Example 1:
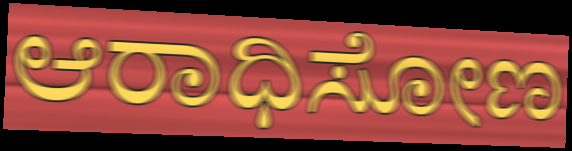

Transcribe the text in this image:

ಆರಾಧಿಸೋಣ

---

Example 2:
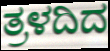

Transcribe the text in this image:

ತ್ರಳದಿದ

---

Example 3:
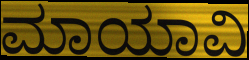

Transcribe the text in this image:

ಮಾಯಾವಿ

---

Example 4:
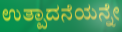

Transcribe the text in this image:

ಉತ್ಪಾದನೆಯನ್ನೇ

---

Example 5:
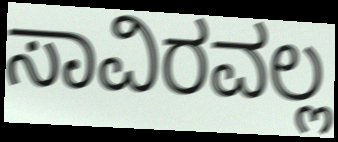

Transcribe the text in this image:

ಸಾವಿರವಲ್ಲ